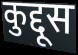
कुद्दूस